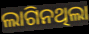
ଲାଗିନଥିଲା